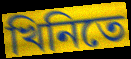
খিনিতে